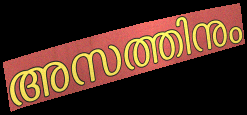
അസത്തിനും